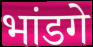
भांडगे